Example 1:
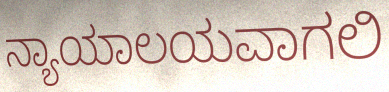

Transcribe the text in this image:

ನ್ಯಾಯಾಲಯವಾಗಲಿ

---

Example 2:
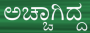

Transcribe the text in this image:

ಅಚ್ಚಾಗಿದ್ದ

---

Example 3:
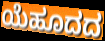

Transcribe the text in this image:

ಯೆಹೂದದ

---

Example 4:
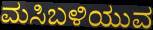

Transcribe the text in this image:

ಮಸಿಬಳಿಯುವ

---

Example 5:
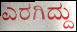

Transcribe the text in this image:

ಎರಗಿದ್ದು